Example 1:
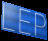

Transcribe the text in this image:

LEP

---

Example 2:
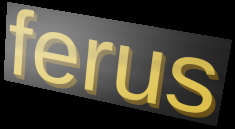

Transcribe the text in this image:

ferus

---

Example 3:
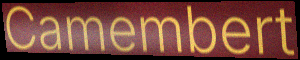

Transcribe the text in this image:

Camembert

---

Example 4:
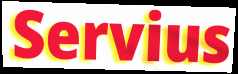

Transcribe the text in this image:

Servius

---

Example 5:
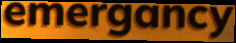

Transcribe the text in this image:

emergancy